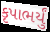
કૃપાભર્યું